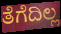
ತೆಗೆದಿಲ್ಲ